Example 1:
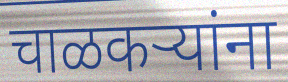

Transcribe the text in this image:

चाळकऱ्यांना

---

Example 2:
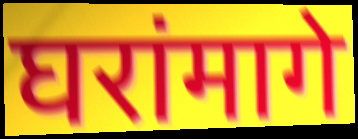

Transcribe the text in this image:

घरांमागे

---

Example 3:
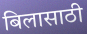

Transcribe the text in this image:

बिलासाठी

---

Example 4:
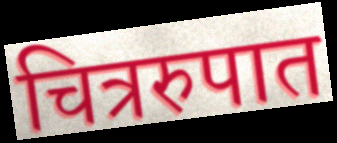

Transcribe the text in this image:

चित्ररुपात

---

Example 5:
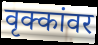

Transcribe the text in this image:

वृक्कांवर